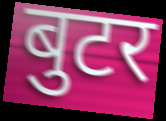
बुटर